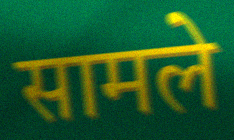
सामले